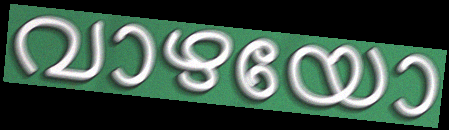
വാഴയോ